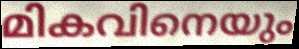
മികവിനെയും